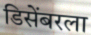
डिसेंबरला